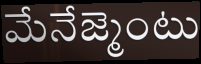
మేనేజ్మెంటు